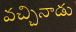
వచ్చినాడు